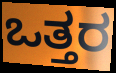
ಒತ್ತರ